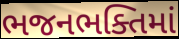
ભજનભક્તિમાં